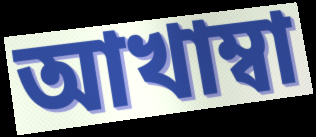
আখাম্বা